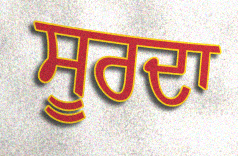
ਸੂਰਦਾ